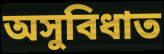
অসুবিধাত